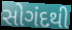
સોગંદથી